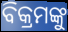
ବିକ୍ରମଙ୍କୁ